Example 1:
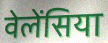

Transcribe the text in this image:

वेलेंसिया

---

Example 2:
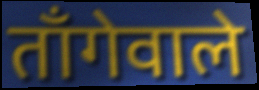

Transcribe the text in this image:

ताँगेवाले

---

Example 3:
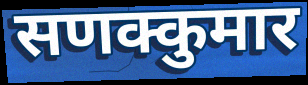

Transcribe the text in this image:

सणक्कुमार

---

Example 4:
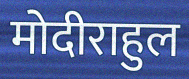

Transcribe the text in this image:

मोदीराहुल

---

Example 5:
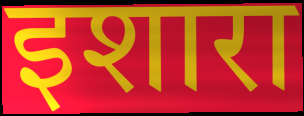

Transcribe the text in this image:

इशारा